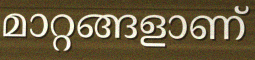
മാറ്റങ്ങളാണ്